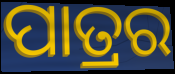
ପାତ୍ରର